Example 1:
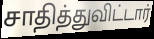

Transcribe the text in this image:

சாதித்துவிட்டார்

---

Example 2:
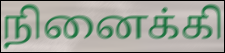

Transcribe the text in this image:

நினைக்கி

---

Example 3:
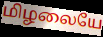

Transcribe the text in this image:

மிழலையே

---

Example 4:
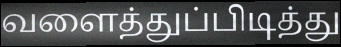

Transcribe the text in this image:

வளைத்துப்பிடித்து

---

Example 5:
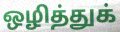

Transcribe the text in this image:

ஒழித்துக்